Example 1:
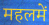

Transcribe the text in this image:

महलमें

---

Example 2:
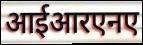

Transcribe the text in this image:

आईआरएनए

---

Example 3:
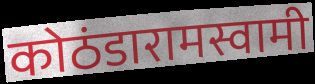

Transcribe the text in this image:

कोठंडारामस्वामी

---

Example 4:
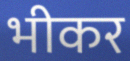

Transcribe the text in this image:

भीकर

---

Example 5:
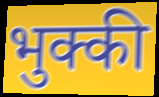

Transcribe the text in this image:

भुक्की